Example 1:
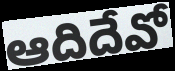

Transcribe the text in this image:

ఆదిదేవో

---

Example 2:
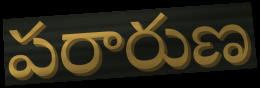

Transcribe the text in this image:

పరారుణ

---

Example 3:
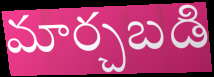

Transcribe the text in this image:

మార్చబడి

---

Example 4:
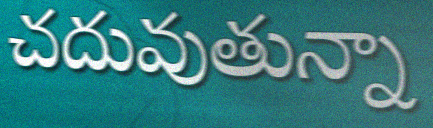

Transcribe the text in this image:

చదువుతున్నా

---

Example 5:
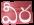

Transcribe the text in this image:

వీర